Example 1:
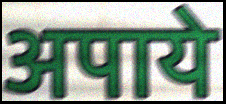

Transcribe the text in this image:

अपाये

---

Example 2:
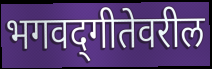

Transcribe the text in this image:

भगवद्‌गीतेवरील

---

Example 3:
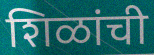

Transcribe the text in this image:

शिळांची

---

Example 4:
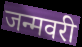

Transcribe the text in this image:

जन्मवरी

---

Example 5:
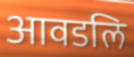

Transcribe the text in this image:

आवडलि